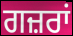
ਗਜ਼ਰਾਂ